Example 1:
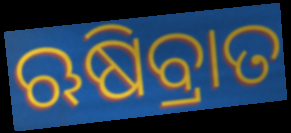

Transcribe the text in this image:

ଋଷିବ୍ରାତ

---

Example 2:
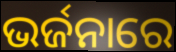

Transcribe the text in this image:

ଭର୍ଜନାରେ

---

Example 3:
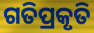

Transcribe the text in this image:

ଗତିପ୍ରକୃତି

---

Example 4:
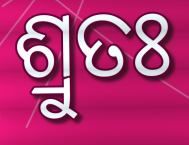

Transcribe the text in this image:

ଶ୍ରୁତଃ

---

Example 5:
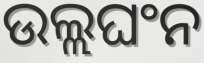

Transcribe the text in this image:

ଉଲ୍ଲଘଂନ